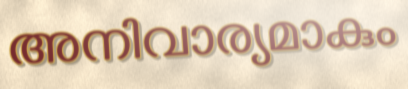
അനിവാര്യമാകും